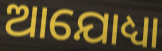
ଆଯୋଧ୍ୟା